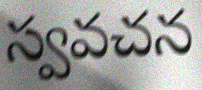
స్వవచన